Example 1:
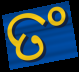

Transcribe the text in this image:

ତଂ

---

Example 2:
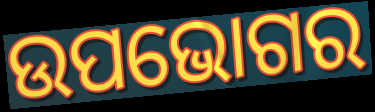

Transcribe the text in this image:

ଉପଭୋଗର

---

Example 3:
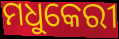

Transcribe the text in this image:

ମଧୁକେରୀ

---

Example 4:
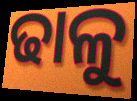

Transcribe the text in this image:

ଢାଳୁ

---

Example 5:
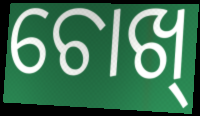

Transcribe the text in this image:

ଚୋଖ୍